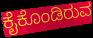
ಕೈಕೊಂಡಿರುವ